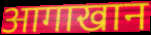
आगाखान